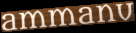
ammanu